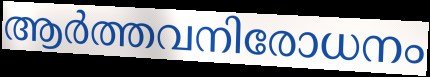
ആർത്തവനിരോധനം